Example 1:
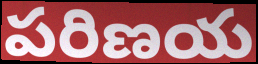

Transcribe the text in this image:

పరిణయ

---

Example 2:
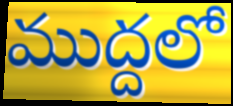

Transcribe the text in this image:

ముద్దలో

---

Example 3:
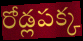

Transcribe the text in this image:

రోడ్లపక్క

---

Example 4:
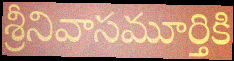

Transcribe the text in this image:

శ్రీనివాసమూర్తికి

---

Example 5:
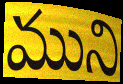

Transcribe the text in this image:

ముని